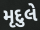
મૃદુલે